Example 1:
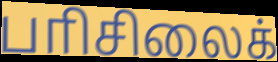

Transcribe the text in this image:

பரிசிலைக்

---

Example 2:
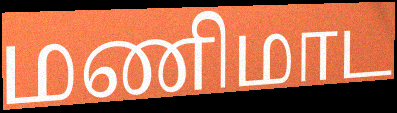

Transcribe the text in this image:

மணிமாட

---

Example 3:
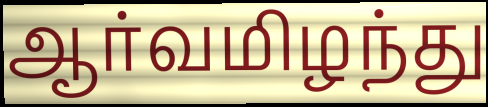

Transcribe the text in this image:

ஆர்வமிழந்து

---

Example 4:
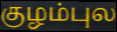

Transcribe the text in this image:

குழம்புல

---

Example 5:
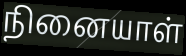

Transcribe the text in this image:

நினையாள்